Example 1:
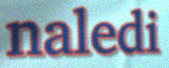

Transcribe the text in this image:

naledi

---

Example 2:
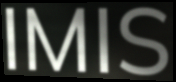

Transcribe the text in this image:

IMIS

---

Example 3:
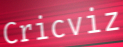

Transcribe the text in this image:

Cricviz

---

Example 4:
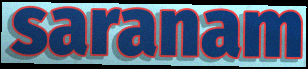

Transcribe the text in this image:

saranam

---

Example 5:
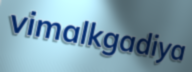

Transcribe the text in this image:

vimalkgadiya